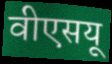
वीएसयू